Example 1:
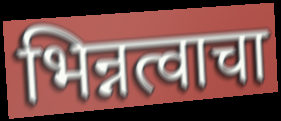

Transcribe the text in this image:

भिन्नत्वाचा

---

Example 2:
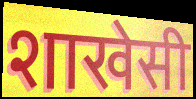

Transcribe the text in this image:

शाखेसी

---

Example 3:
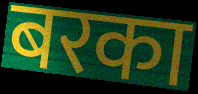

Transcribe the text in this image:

बरका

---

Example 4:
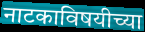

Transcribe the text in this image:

नाटकाविषयीच्या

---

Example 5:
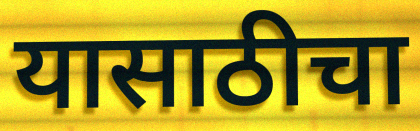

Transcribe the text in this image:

यासाठीचा